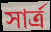
সার্ত্র